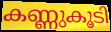
കണ്ണുകൂടി